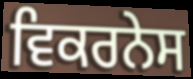
ਵਿਕਰਨੇਸ